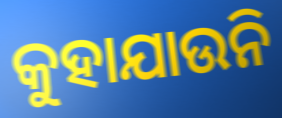
କୁହାଯାଉନି